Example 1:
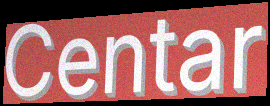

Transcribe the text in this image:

Centar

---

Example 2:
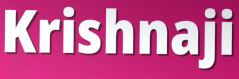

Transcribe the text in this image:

Krishnaji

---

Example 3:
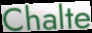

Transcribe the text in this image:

Chalte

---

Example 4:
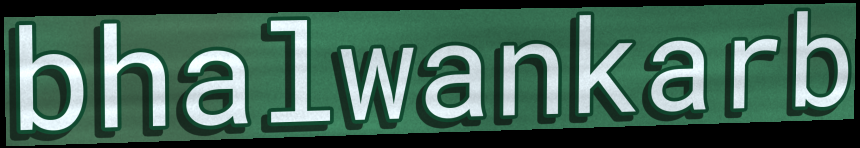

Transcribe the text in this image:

bhalwankarb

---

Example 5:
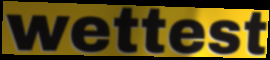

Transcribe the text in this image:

wettest